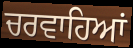
ਚਰਵਾਹਿਆਂ